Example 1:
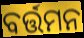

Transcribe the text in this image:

ବର୍ତ୍ତମନ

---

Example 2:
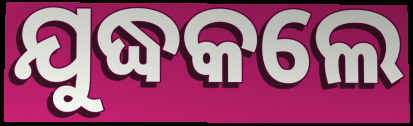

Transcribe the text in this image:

ଯୁଦ୍ଧକଲେ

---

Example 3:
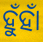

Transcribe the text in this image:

ହୁଁହାଁ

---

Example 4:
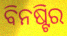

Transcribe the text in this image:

ବିନଷ୍ଟିର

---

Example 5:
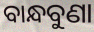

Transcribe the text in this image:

ବାନ୍ଧବୁଣା